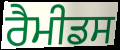
ਰੈਮੀਡਸ